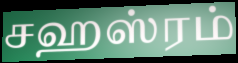
சஹஸ்ரம்